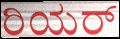
ರಿಯರ್